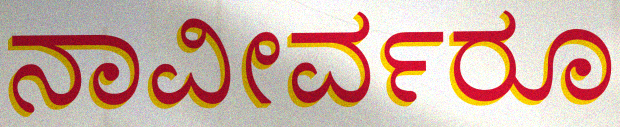
ನಾವೀರ್ವರೂ